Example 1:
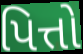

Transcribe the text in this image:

પિત્તો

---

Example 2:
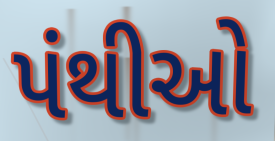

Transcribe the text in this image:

પંથીઓ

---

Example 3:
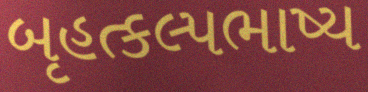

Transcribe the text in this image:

બૃહત્કલ્પભાષ્ય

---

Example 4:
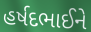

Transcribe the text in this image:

હર્ષદભાઈને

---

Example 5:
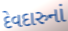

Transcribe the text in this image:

દેવદારુનાં